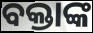
ବକ୍ତାଙ୍କ